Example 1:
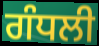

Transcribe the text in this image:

ਗੰਧਲੀ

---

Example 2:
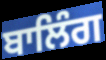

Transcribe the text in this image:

ਬਾਲਿੰਗ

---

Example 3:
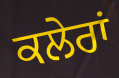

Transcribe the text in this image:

ਕਲੇਰਾਂ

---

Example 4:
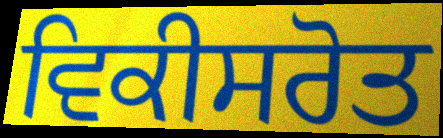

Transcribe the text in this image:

ਵਿਕੀਸਰੋਤ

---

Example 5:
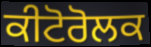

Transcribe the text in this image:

ਕੀਟੋਰੋਲਕ